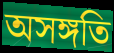
অসঙ্গতি